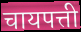
चायपत्ती